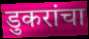
डुकरांचा